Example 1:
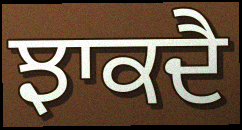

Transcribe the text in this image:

ਝਾਕਦੈ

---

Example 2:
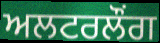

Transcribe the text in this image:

ਅਲਟਰਲੌਂਗ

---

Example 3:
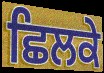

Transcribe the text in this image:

ਛਿਲਕੇ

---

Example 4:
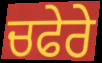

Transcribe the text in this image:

ਚਫੇਰੇ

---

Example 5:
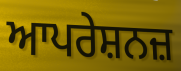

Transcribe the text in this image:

ਆਪਰੇਸ਼ਨਜ਼